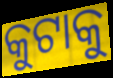
କୁଟାକୁ